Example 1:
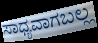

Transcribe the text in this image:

ಸಾಧ್ಯವಾಗಬಲ್ಲ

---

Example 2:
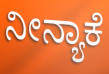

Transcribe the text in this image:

ನೀನ್ಯಾಕೆ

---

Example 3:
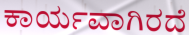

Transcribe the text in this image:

ಕಾರ್ಯವಾಗಿರದೆ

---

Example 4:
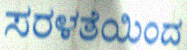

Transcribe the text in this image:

ಸರಳತೆಯಿಂದ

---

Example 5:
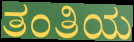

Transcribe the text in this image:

ತಂತಿಯ